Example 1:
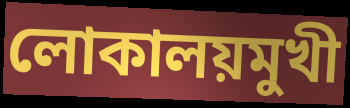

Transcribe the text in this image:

লোকালয়মুখী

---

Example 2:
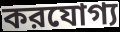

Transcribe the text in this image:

করযোগ্য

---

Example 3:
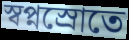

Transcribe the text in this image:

স্বপ্নস্রোতে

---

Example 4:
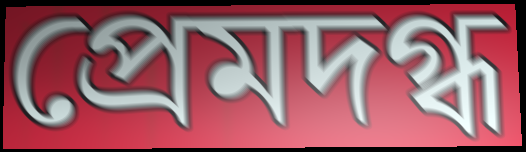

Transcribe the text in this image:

প্রেমদগ্ধ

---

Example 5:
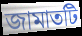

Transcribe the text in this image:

জামাতটি